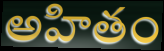
అహితం